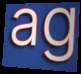
ag